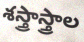
శస్త్రాస్త్రాల